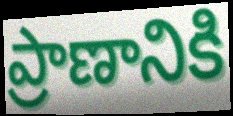
ప్రాణానికి